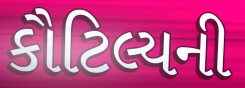
કૌટિલ્યની